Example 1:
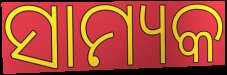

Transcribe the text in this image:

ସାମ୍ୟକ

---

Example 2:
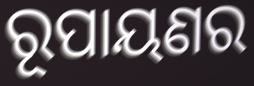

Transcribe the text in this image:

ରୂପାୟଣର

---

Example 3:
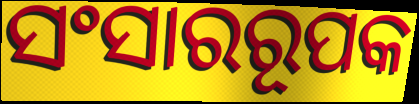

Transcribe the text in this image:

ସଂସାରରୂପକ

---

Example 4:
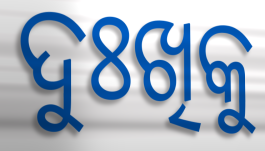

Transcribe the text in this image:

ଦୁଃଖିକୁ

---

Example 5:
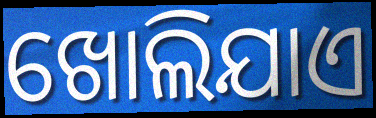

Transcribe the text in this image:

ଖୋଲିଯାଏ